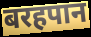
बरहपान